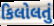
કિલોલતું